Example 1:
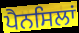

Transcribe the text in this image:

ਪੈਨਸਿਲਾਂ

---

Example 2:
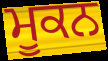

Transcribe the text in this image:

ਮੂਕਨ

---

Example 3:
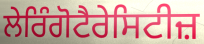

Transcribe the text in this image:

ਲੇਰਿੰਗੋਟੈਰੇਸਿਟੀਜ਼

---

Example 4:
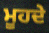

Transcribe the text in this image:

ਮੂਹਦੇ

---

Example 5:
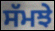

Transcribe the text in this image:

ਸੱਮਝੇ